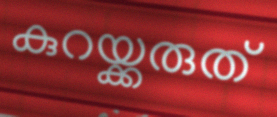
കുറയ്ക്കരുത്